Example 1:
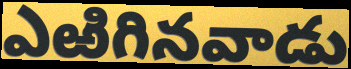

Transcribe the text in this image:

ఎఱిగినవాడు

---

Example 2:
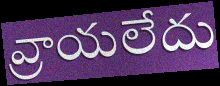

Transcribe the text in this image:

వ్రాయలేదు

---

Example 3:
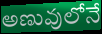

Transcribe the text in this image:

అణువులోనే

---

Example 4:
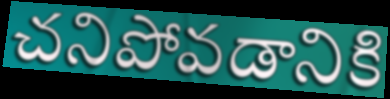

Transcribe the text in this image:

చనిపోవడానికి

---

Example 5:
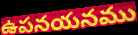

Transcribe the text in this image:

ఉపనయనము